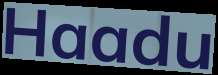
Haadu